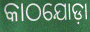
କାଠଯୋଡ଼ା